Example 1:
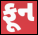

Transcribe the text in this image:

ફૂન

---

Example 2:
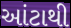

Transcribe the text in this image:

આંટાથી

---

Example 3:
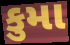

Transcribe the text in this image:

કુમા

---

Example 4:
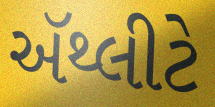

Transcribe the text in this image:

ઍથ્લીટે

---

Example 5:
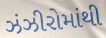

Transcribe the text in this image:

ઝંઝીરોમાંથી